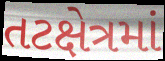
તટક્ષેત્રમાં